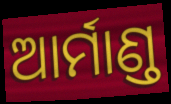
ଆର୍ମାଣ୍ଡ